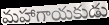
మహాగాయకుడు